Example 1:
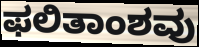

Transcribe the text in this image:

ಫಲಿತಾಂಶವು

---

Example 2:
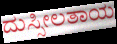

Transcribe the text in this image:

ದುಸ್ಸೀಲತಾಯ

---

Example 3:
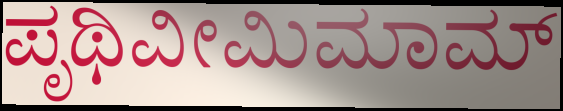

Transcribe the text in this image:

ಪೃಥಿವೀಮಿಮಾಮ್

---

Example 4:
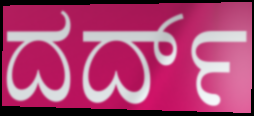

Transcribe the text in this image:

ದರ್ದ್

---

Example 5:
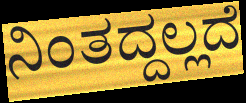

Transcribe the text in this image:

ನಿಂತದ್ದಲ್ಲದೆ